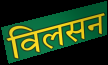
विलसन